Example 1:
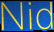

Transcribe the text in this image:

Nid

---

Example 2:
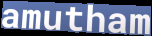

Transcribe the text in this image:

amutham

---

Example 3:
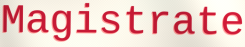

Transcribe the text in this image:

Magistrate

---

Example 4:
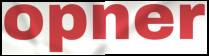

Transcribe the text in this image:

opner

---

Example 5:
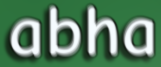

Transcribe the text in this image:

abha